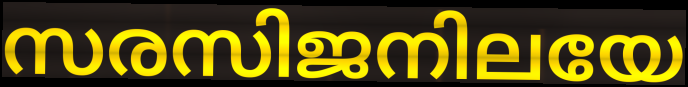
സരസിജനിലയേ